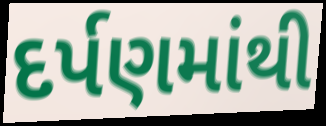
દર્પણમાંથી